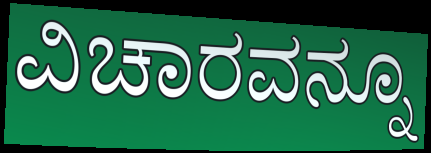
ವಿಚಾರವನ್ನೂ